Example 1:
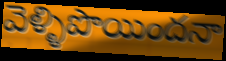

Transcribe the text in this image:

వెళ్ళిపొయిందనా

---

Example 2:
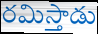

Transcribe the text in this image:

రమిస్తాడు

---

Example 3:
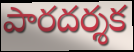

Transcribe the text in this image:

పారదర్శక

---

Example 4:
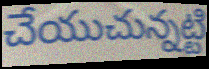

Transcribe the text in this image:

చేయుచున్నట్టి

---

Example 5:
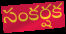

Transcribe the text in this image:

సంకర్షక